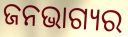
ଜନଭାଗ୍ୟର